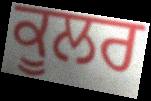
ਕੂਲਰ